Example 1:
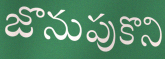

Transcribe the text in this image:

జొనుపుకొని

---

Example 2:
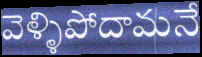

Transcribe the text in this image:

వెళ్ళిపోదామనే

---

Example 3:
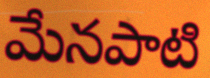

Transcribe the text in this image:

మేనపాటి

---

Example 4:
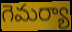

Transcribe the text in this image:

గెమర్యా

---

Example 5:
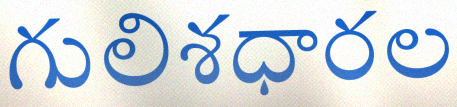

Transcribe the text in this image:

గులిశధారల